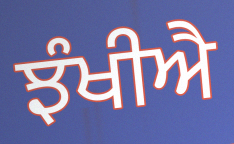
ਝੰਖੀਐ